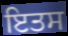
ਇਤਸ